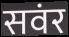
सवंर